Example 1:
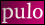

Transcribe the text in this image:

pulo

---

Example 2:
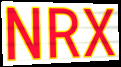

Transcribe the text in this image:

NRX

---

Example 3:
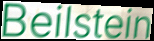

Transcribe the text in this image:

Beilstein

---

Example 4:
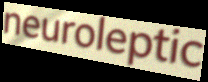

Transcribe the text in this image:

neuroleptic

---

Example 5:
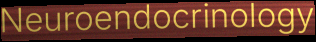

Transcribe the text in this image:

Neuroendocrinology